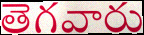
తెగవారు